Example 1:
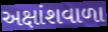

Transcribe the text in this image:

અક્ષાંશવાળા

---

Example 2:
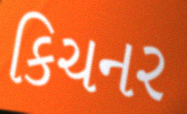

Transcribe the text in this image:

કિચનર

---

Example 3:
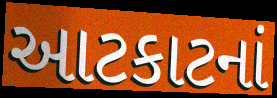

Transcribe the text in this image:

આટકાટનાં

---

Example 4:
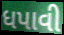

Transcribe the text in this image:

ધપાવી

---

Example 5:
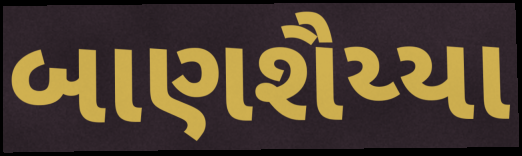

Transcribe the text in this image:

બાણશૈય્યા